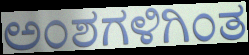
ಅಂಶಗಳಿಗಿಂತ